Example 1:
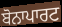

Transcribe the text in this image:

ਬੋਨਾਪਾਰਟ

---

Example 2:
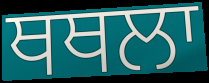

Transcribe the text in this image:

ਥਥਲਾ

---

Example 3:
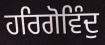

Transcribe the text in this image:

ਹਰਿਗੋਵਿੰਦੁ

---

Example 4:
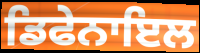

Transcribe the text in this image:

ਡਿਫੇਨਾਇਲ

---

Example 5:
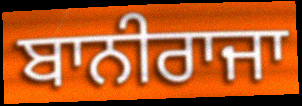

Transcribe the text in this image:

ਬਾਨੀਰਾਜਾ